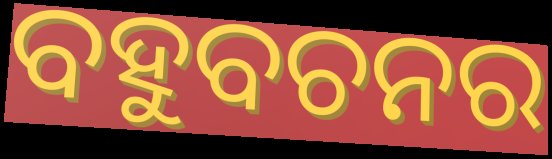
ବହୁବଚନର